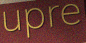
upre